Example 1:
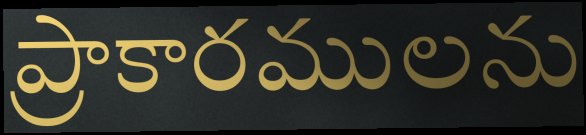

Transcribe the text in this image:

ప్రాకారములను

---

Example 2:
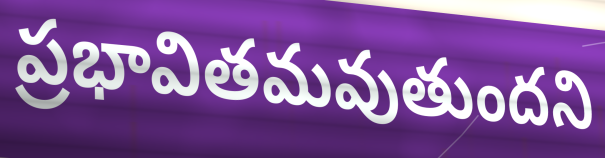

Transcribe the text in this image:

ప్రభావితమవుతుందని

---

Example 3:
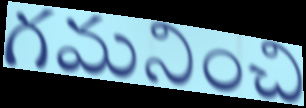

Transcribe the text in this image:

గమనించి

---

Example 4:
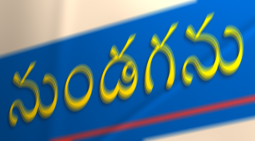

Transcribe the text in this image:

నుండగను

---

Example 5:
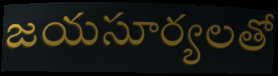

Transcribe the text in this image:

జయసూర్యలతో